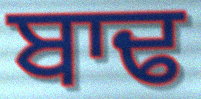
ਬਾਢ